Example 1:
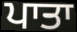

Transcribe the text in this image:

ਪਾਤਾ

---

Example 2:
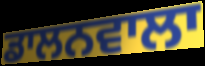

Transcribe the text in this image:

ਡਾਲਨਵਾਲਾ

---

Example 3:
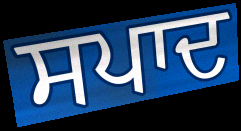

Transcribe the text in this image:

ਸਪਾਦ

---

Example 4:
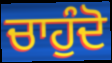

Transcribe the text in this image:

ਚਾਹੁੰਦੋ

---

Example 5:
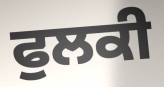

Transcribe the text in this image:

ਫੁਲਕੀ